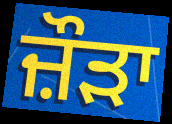
ਜ਼ੌੜਾ